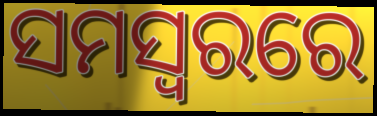
ସମସ୍ବରରେ